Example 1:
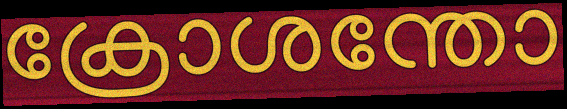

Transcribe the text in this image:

ക്രോശന്തോ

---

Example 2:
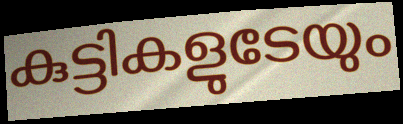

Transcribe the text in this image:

കുട്ടികളുടേയും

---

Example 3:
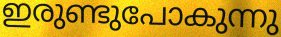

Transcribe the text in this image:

ഇരുണ്ടുപോകുന്നു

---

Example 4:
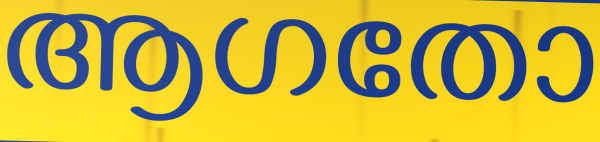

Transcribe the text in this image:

ആഗതോ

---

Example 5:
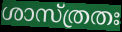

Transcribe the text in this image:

ശാസ്ത്രതഃ